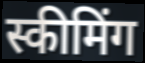
स्कीमिंग